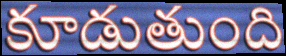
కూడుతుంది